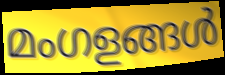
മംഗളങ്ങൾ